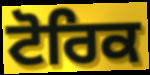
ਟੋਰਿਕ